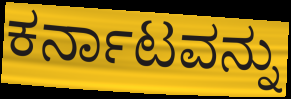
ಕರ್ನಾಟವನ್ನು